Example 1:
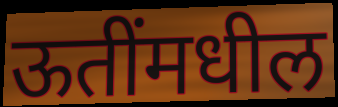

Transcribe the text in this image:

ऊतींमधील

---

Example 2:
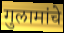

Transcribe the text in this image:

गुलामांचे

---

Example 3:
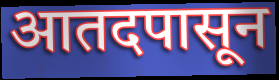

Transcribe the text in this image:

आतदपासून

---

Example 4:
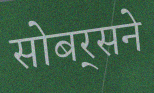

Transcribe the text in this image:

सोबर्सने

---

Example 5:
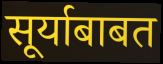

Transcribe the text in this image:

सूर्याबाबत